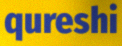
qureshi